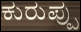
ಕುರುಪ್ಪು